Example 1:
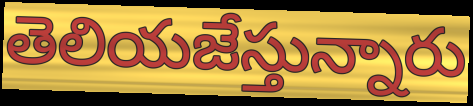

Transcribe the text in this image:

తెలియజేస్తున్నారు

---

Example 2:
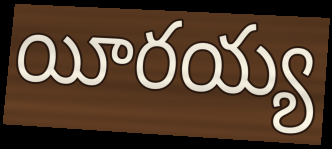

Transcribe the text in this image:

యీరయ్య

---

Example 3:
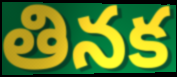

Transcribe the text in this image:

తినక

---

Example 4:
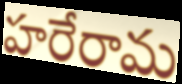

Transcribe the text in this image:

హరేరామ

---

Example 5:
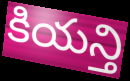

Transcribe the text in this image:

కియన్తి